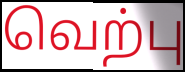
வெற்பு